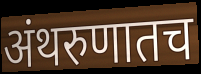
अंथरुणातच